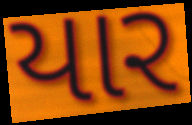
યાર